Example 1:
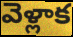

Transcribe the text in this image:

వెళ్లాక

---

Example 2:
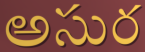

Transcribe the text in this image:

అసుర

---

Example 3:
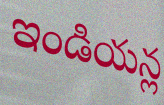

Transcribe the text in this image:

ఇండియన్ల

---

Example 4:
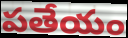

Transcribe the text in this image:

పతేయం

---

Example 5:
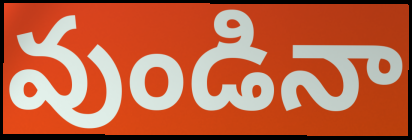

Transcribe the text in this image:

వుండినా